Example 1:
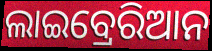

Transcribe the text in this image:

ଲାଇବ୍ରେରିଆନ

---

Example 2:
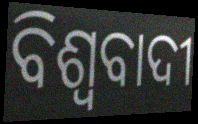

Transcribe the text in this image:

ବିଶ୍ବବାଦୀ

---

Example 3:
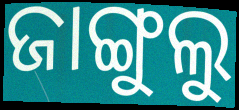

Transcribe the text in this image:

ଜାଙ୍ଗୁଲୁ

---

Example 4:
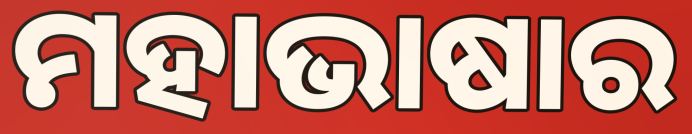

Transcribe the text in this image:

ମହାଭାଷାର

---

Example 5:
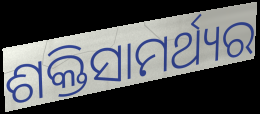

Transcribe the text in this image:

ଶକ୍ତିସାମର୍ଥ୍ୟର